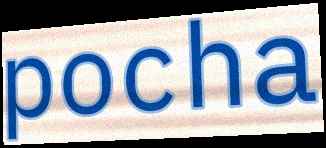
pocha